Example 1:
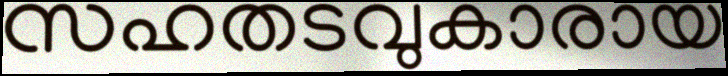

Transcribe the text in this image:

സഹതടവുകാരായ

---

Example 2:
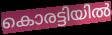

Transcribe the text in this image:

കൊരട്ടിയിൽ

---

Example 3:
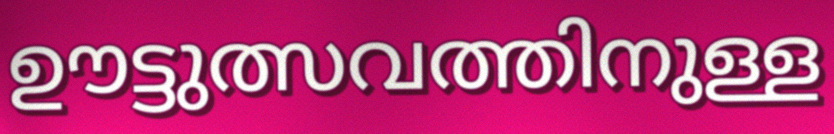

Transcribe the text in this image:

ഊട്ടുത്സവത്തിനുള്ള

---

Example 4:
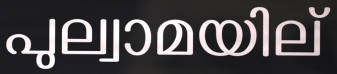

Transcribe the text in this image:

പുല്വാമയില്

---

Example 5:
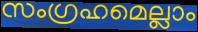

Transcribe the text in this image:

സംഗ്രഹമെല്ലാം